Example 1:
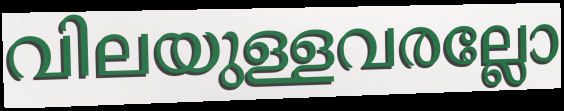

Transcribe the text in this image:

വിലയുള്ളവരല്ലോ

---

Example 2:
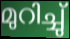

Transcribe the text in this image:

മുറിച്ചു്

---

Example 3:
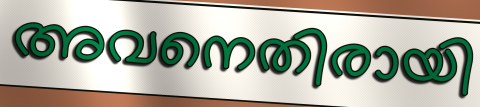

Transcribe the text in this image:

അവനെതിരായി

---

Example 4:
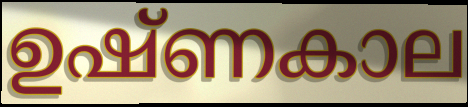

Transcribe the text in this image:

ഉഷ്ണകാല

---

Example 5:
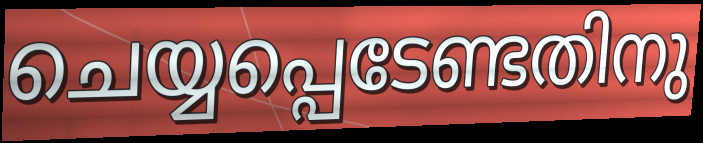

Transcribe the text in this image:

ചെയ്യപ്പെടേണ്ടതിനു